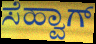
ಸೆಹ್ವಾಗ್